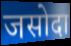
जसोदा